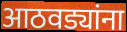
आठवड्यांना